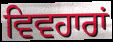
ਵਿਵਹਾਰਾਂ